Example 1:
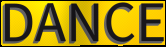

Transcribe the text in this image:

DANCE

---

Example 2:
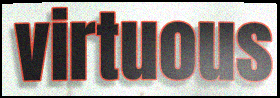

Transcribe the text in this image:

virtuous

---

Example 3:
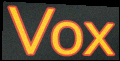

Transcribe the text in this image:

Vox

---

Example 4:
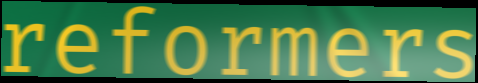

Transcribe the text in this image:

reformers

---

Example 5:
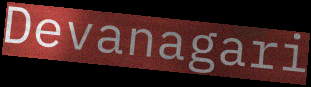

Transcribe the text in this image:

Devanagari